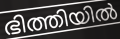
ഭിത്തിയിൽ